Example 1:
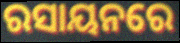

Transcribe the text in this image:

ରସାୟନରେ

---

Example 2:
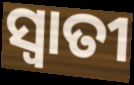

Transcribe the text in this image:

ସ୍ୱାତୀ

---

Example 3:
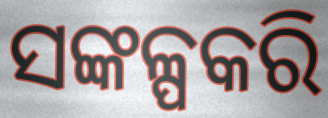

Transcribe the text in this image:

ସଙ୍କଳ୍ପକରି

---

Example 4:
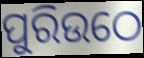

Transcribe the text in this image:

ପୁରିଉଠେ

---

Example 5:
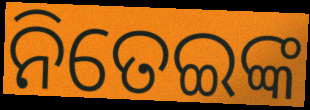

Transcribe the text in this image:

ନିତେଇଙ୍କ